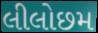
લીલોછમ